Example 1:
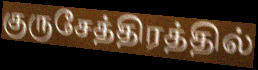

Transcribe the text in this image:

குருசேத்திரத்தில்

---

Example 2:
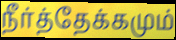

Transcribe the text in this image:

நீர்த்தேக்கமும்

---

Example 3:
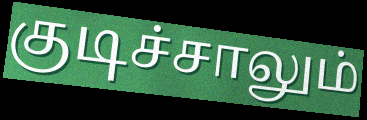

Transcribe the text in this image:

குடிச்சாலும்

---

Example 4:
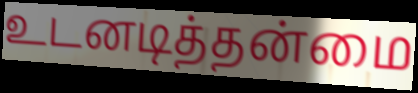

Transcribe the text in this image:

உடனடித்தன்மை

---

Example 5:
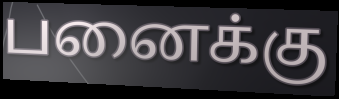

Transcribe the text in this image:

பனைக்கு